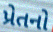
પ્રેતનો